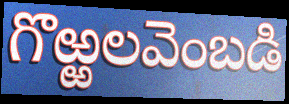
గొఱ్ఱలవెంబడి